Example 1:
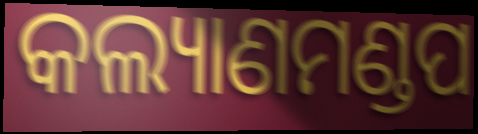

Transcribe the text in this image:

କଲ୍ୟାଣମଣ୍ଡପ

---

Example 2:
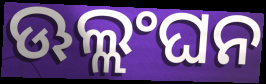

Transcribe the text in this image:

ଊଲ୍ଲଂଘନ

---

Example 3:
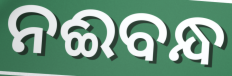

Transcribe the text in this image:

ନଈବନ୍ଧ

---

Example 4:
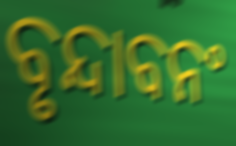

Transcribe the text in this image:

ବୃନ୍ଦାବନଂ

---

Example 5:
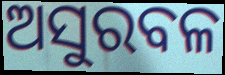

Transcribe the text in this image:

ଅସୁରବଳ